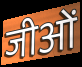
जीओं